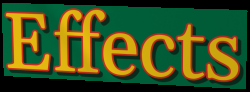
Effects